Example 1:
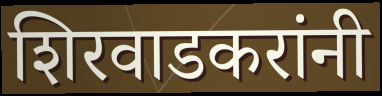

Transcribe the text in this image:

शिरवाडकरांनी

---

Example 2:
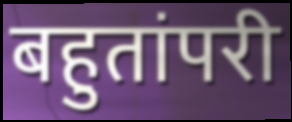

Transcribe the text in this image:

बहुतांपरी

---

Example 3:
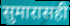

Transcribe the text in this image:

सुमारासही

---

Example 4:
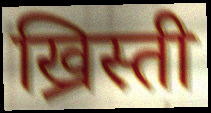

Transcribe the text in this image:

ख्रिस्ती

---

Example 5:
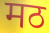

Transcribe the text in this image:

मठ